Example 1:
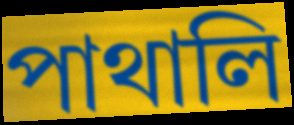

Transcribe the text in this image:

পাথালি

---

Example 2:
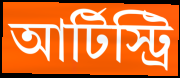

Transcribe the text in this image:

আর্টিস্ট্রি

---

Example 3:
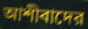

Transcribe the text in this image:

আশীবাদের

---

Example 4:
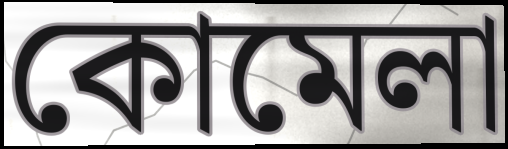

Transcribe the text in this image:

কোমেলা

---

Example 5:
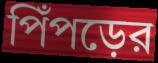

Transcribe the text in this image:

পিঁপড়ের